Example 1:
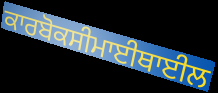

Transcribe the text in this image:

ਕਾਰਬੋਕਸੀਮਾਈਥਾਈਲ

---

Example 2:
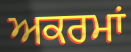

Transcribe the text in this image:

ਅਕਰਮਾਂ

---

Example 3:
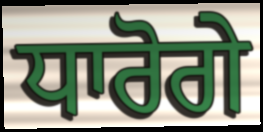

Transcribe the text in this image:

ਧਾਰੋਗੇ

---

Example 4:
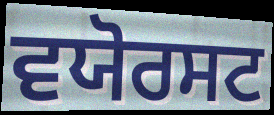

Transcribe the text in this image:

ਵਯੋਰਸਟ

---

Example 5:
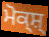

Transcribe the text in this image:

ਮੋਕ੍ਸ਼੍